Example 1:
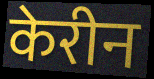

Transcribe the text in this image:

केरीन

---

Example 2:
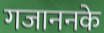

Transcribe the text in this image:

गजाननके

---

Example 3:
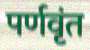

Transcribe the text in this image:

पर्णवृंत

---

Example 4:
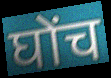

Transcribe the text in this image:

घोंच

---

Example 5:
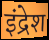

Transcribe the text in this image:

इंद्रेश